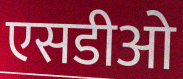
एसडीओ